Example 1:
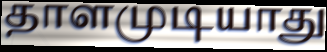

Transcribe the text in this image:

தாளமுடியாது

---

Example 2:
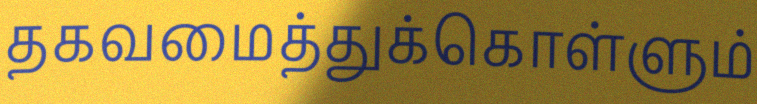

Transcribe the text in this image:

தகவமைத்துக்கொள்ளும்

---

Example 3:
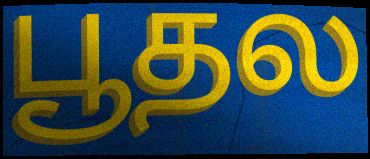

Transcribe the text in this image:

பூதல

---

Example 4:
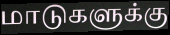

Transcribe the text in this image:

மாடுகளுக்கு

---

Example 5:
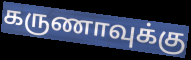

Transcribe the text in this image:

கருணாவுக்கு